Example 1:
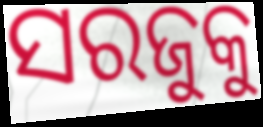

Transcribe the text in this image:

ସରଜୁକୁ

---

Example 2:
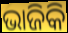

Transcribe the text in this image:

ଭାଜିକି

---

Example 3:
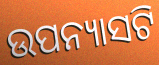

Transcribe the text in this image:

ଉପନ୍ୟାସଟି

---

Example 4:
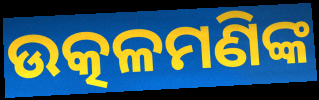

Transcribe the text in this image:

ଉତ୍କଳମଣିଙ୍କ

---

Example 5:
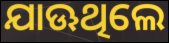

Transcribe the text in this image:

ଯାଊଥିଲେ